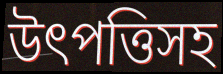
উৎপত্তিসহ